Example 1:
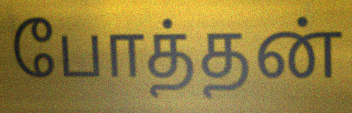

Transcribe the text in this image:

போத்தன்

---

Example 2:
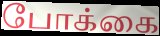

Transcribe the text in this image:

போக்கை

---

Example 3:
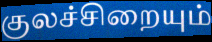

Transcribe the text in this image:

குலச்சிறையும்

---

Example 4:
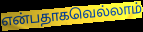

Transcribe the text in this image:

என்பதாகவெல்லாம்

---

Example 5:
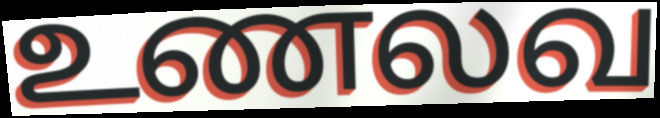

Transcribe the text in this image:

உணலவ